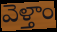
వెళ్తాం